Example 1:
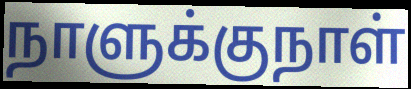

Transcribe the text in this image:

நாளுக்குநாள்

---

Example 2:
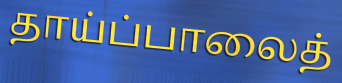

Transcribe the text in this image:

தாய்ப்பாலைத்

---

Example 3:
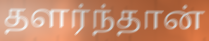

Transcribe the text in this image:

தளர்ந்தான்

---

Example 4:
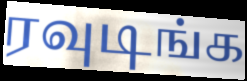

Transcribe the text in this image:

ரவுடிங்க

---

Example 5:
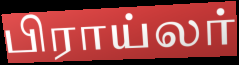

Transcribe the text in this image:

பிராய்லர்